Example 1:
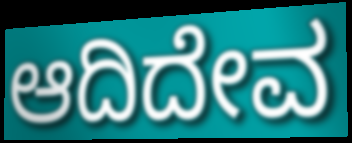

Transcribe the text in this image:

ಆದಿದೇವ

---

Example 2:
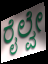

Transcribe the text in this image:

ರೈಲ್ವೇ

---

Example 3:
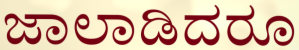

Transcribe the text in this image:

ಜಾಲಾಡಿದರೂ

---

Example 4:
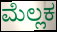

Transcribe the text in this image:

ಮೆಲ್ಲಕ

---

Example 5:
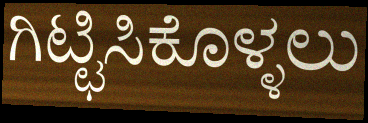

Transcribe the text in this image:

ಗಿಟ್ಟಿಸಿಕೊಳ್ಳಲು